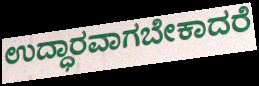
ಉದ್ಧಾರವಾಗಬೇಕಾದರೆ